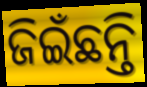
ଜିଇଁଛନ୍ତି